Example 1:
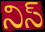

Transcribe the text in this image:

నిస్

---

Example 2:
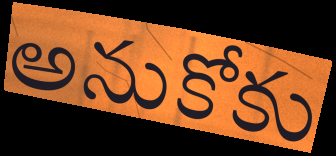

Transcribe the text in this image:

అనుకోకు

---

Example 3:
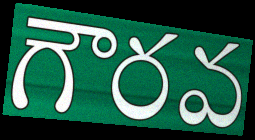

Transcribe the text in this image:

గౌరవ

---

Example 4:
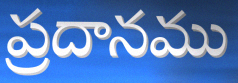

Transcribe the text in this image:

ప్రదానము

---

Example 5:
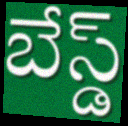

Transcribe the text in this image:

బేస్డ్